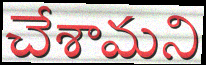
చేశామని